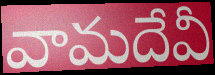
వామదేవీ